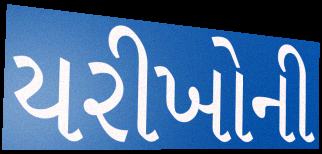
યરીખોની